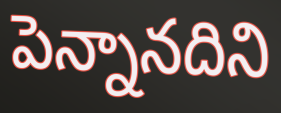
పెన్నానదిని